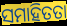
ସମାହିତତା